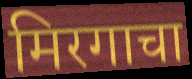
मिरगाचा